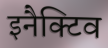
इनैक्टिव